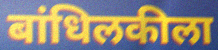
बांधिलकीला